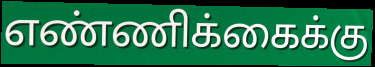
எண்ணிக்கைக்கு